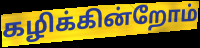
கழிக்கின்றோம்